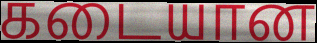
கடையான